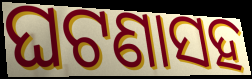
ଘଟଣାସହ